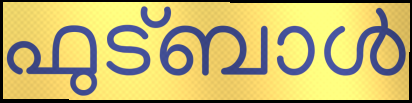
ഫുട്ബാൾ